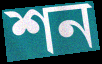
শন